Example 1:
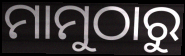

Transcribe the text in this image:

ମାମୁଠାରୁ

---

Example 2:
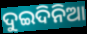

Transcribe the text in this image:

ଦୁଇଦିନିଆ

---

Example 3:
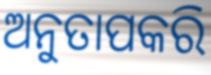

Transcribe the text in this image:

ଅନୁତାପକରି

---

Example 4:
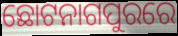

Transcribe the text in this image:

ଛୋଟନାଗପୁରରେ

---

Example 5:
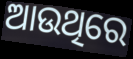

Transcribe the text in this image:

ଆଉଥିରେ